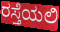
ರಸ್ತೆಯಲಿ